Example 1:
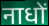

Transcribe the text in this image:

नाधों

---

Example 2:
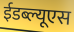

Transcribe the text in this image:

ईडब्ल्यूएस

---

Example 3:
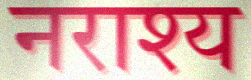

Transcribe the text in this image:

नराश्य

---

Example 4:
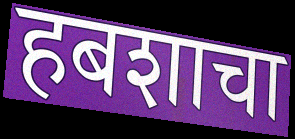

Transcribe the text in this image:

हबशाचा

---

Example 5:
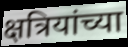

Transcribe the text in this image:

क्षत्रियांच्या